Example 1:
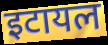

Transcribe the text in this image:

इटायल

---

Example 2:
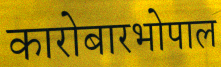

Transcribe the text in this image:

कारोबारभोपाल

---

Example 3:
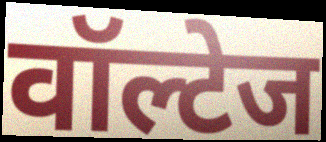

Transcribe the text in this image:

वॉल्टेज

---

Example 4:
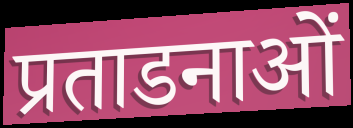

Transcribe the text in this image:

प्रताडनाओं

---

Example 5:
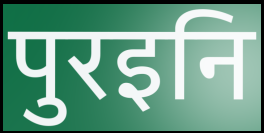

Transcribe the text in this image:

पुरइनि